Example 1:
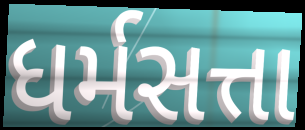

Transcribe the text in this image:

ધર્મસત્તા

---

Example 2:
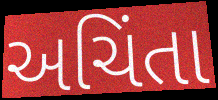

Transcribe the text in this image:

અચિંતા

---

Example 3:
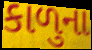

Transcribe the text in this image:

કાળુના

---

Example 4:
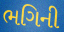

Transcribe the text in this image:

ભગિની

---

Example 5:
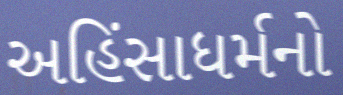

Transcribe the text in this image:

અહિંસાધર્મનો